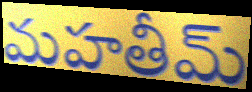
మహతీమ్